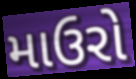
માઉરો